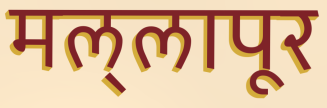
मल्लापूर